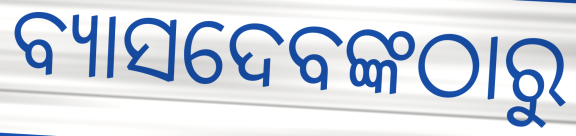
ବ୍ୟାସଦେବଙ୍କଠାରୁ